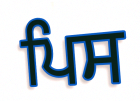
ਪਿਸ